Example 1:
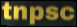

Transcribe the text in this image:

tnpsc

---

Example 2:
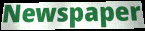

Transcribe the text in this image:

Newspaper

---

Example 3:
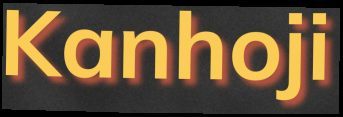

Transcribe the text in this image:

Kanhoji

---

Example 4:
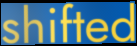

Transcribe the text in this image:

shifted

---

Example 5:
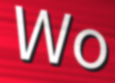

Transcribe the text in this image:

Wo